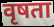
वृषता